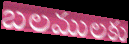
బలములకు